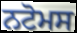
ਨਟੋਮਸ